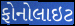
ફોનોલાઇટ